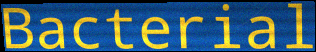
Bacterial